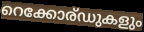
റെക്കോര്ഡുകളും